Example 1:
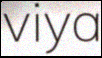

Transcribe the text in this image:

viya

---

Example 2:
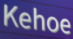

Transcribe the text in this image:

Kehoe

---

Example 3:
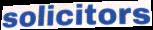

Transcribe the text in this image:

solicitors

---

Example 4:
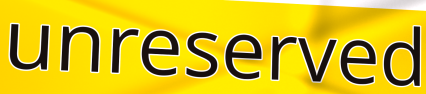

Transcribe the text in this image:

unreserved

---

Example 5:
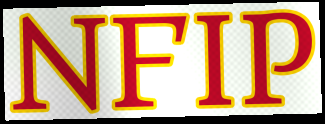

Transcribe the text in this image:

NFIP